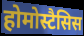
होमोस्टैसिस